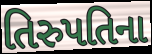
તિરુપતિના